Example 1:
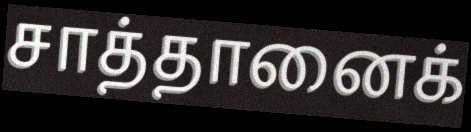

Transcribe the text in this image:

சாத்தானைக்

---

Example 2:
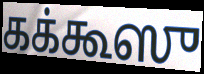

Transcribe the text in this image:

கக்கூஸு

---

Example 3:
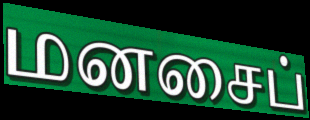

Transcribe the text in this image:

மனசைப்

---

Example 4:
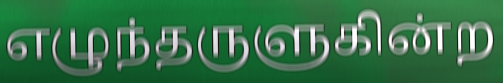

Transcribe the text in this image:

எழுந்தருளுகின்ற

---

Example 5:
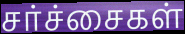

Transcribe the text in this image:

சர்ச்சைகள்